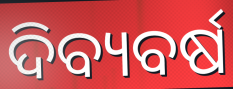
ଦିବ୍ୟବର୍ଷ